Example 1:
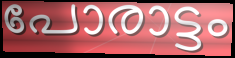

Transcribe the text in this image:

പോരാട്ടം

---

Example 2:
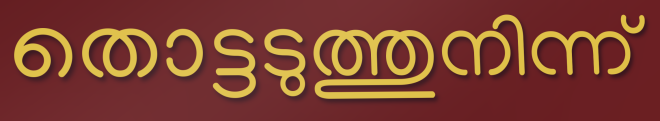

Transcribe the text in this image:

തൊട്ടടുത്തുനിന്ന്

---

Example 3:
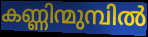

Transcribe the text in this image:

കണ്ണിന്മുമ്പിൽ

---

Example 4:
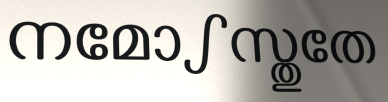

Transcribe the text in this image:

നമോഽസ്തുതേ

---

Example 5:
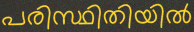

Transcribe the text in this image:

പരിസ്ഥിതിയിൽ